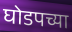
घोडपच्या